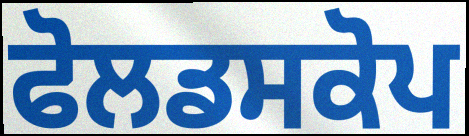
ਫੋਲਡਸਕੋਪ